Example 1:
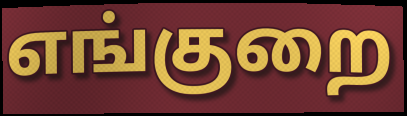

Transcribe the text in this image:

எங்குறை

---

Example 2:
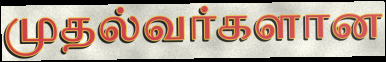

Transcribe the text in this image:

முதல்வர்களான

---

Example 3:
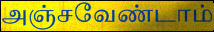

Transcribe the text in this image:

அஞ்சவேண்டாம்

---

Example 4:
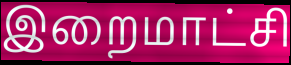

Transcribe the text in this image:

இறைமாட்சி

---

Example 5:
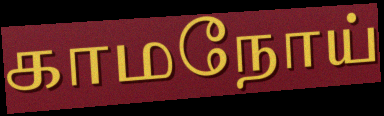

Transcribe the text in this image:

காமநோய்